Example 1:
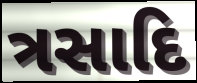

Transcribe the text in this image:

ત્રસાદિ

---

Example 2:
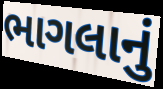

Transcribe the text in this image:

ભાગલાનું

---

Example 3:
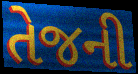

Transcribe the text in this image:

તેજની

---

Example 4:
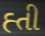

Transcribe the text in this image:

હ્તી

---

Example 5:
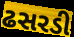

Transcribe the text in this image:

ઢસરડી